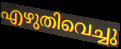
എഴുതിവെച്ചു